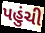
પહુંચી